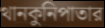
থানকুনিপাতার